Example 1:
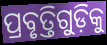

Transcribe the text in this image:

ପ୍ରବୃତ୍ତିଗୁଡ଼ିକୁ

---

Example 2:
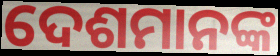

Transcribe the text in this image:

ଦେଶମାନଙ୍କ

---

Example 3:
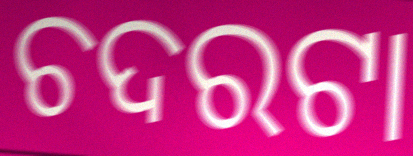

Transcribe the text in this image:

ଚଦରଟା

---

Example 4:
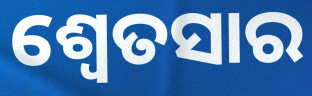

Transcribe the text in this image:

ଶ୍ଵେତସାର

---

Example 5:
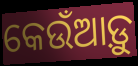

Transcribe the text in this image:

କେଉଁଆଡ଼ୁ